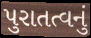
પુરાતત્વનું